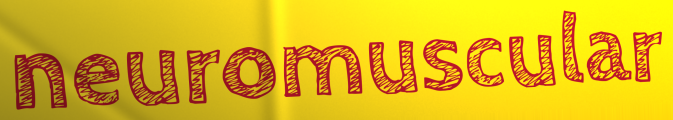
neuromuscular